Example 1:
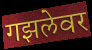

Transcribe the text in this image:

गझलेवर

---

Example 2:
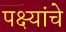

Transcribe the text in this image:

पक्ष्यांचे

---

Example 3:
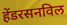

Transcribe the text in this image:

हेंडरसनविल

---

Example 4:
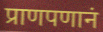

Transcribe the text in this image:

प्राणपणानं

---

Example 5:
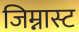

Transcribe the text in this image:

जिम्नास्ट